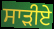
ਸਾੜੀਏ